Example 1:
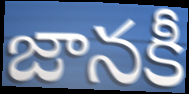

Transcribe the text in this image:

జానకీ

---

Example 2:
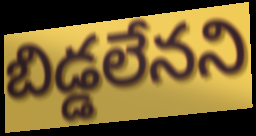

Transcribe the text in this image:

బిడ్డలేనని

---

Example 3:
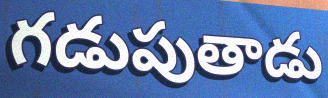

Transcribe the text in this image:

గడుపుతాడు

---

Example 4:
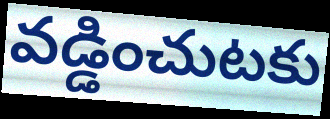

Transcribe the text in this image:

వడ్డించుటకు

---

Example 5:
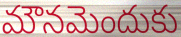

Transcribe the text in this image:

మౌనమెందుకు